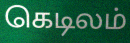
கெடிலம்